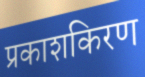
प्रकाशकिरण